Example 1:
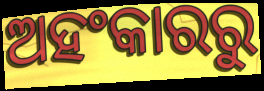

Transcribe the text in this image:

ଅହଂକାରରୁ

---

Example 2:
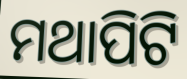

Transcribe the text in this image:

ମଥାପିଟି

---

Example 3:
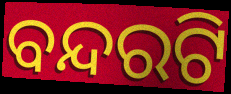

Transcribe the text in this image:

ବନ୍ଦରଟି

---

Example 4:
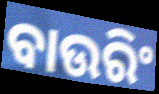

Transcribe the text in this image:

ବାଉରିଂ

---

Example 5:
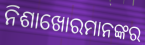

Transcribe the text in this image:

ନିଶାଖୋରମାନଙ୍କର